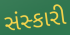
સંસ્કારી